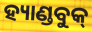
ହ୍ୟାଣ୍ଡବୁକ୍